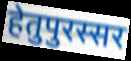
हेतुपुरस्सर